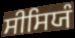
ਸੀਸਿਯੰ